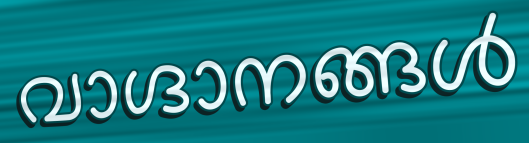
വാഗ്ദാനങ്ങൾ